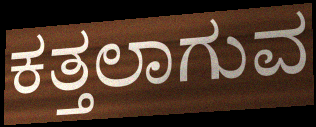
ಕತ್ತಲಾಗುವ